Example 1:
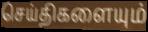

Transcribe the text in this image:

செய்திகளையும்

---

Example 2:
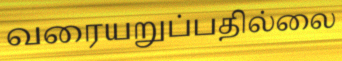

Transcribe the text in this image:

வரையறுப்பதில்லை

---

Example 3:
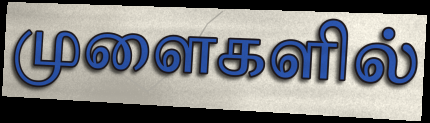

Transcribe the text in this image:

முளைகளில்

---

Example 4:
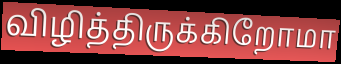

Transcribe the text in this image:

விழித்திருக்கிறோமா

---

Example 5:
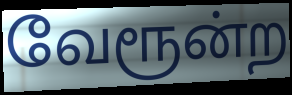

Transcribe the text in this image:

வேரூன்ற